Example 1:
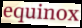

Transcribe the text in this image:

equinox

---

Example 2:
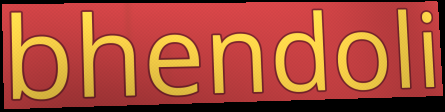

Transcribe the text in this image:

bhendoli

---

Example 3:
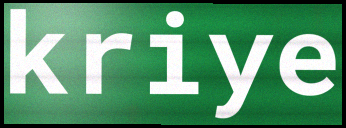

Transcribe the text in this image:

kriye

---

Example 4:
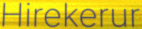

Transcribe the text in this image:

Hirekerur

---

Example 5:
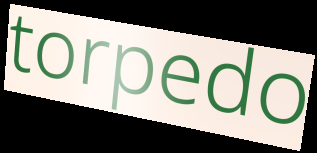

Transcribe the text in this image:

torpedo